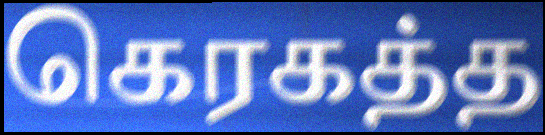
கெரகத்த